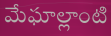
మేఘాల్లాంటి